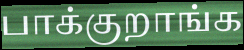
பாக்குறாங்க